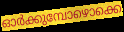
ഓർക്കുമ്പോഴൊക്കെ